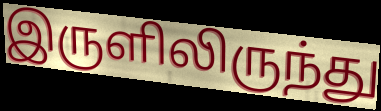
இருளிலிருந்து